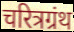
चरित्रग्रंथ